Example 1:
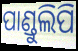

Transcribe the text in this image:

ପାଣ୍ଡୁଲିପି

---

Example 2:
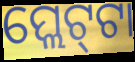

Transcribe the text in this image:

ପ୍ଲେଟ୍‍ଟା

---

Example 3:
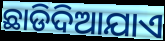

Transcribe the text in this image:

ଛାଡିଦିଆଯାଏ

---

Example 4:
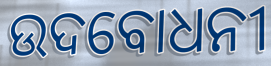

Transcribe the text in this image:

ଉଦବୋଧନୀ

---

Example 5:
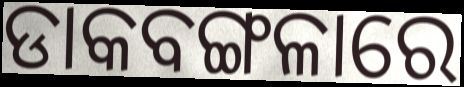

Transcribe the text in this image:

ଡାକବଙ୍ଗଳାରେ